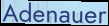
Adenauer